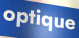
optique